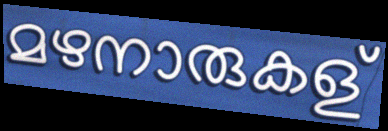
മഴനാരുകള്